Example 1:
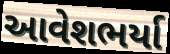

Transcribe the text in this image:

આવેશભર્યા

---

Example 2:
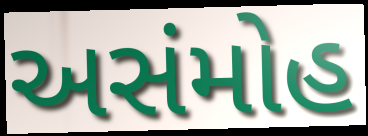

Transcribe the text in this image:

અસંમોહ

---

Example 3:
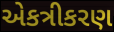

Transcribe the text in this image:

એકત્રીકરણ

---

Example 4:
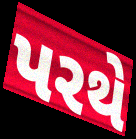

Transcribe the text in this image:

પરથે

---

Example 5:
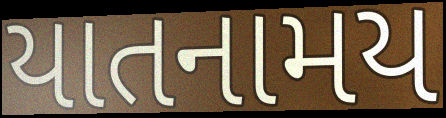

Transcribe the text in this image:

યાતનામય